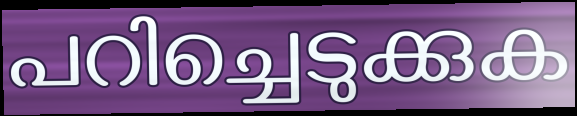
പറിച്ചെടുക്കുക